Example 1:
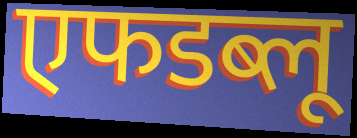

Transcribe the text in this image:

एफडब्लू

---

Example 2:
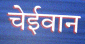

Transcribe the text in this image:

चेईवान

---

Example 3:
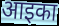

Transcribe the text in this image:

आइका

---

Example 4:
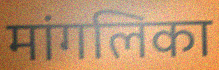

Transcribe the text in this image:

मांगलिका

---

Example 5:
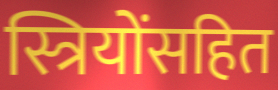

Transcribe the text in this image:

स्त्रियोंसहित